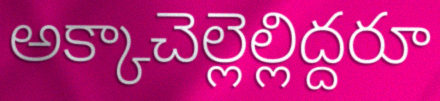
అక్కాచెల్లెల్లిద్దరూ